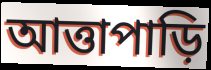
আত্তাপাড়ি